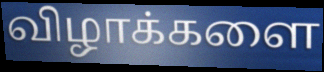
விழாக்களை